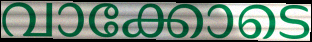
വാക്കോടെ